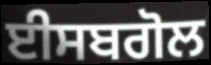
ਈਸਬਗੋਲ